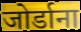
जोर्डाना